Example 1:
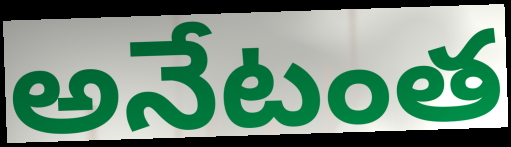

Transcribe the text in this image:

అనేటంత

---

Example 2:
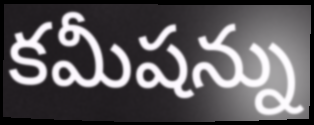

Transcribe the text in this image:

కమీషన్ను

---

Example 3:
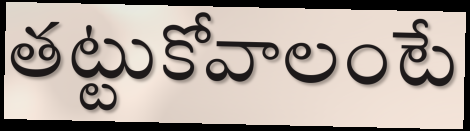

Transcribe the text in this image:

తట్టుకోవాలంటే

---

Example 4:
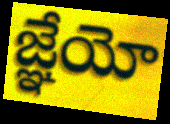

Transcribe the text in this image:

జ్ఞేయో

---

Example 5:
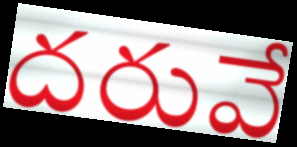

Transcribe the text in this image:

దరువే